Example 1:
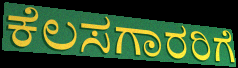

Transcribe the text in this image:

ಕೆಲಸಗಾರರಿಗೆ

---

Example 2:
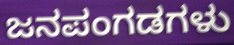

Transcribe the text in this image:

ಜನಪಂಗಡಗಳು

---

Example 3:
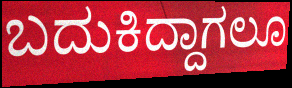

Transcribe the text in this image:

ಬದುಕಿದ್ದಾಗಲೂ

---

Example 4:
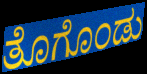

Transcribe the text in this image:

ತೊಗೊಂಡು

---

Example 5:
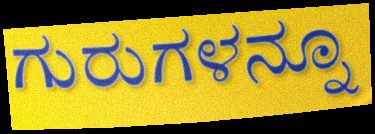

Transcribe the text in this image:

ಗುರುಗಳನ್ನೂ